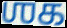
ஶக